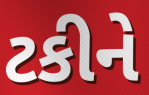
ટકીને